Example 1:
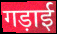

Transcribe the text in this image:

गड़ाई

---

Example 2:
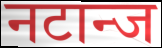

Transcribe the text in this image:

नटान्ज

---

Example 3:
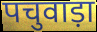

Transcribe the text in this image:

पचुवाड़ा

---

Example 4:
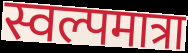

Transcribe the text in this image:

स्वल्पमात्रा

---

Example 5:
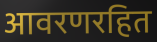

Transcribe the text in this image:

आवरणरहित